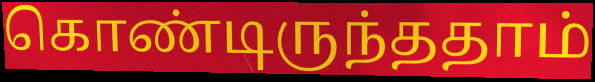
கொண்டிருந்ததாம்